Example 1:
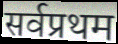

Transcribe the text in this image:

सर्वप्रथम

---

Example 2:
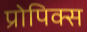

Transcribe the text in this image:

प्रोपिक्स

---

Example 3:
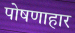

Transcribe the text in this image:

पोषणाहार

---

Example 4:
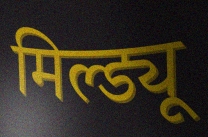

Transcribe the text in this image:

मिल्ड्यू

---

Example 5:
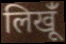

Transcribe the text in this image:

लिखूंँ